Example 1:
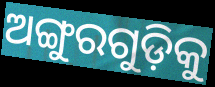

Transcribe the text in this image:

ଅଙ୍ଗୁରଗୁଡ଼ିକୁ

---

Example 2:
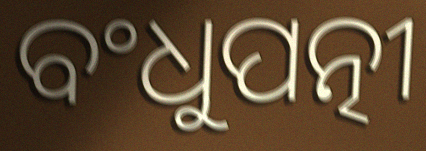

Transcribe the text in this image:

ବଂଧୁପତ୍ନୀ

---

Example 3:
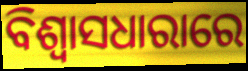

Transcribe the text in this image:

ବିଶ୍ଵାସଧାରାରେ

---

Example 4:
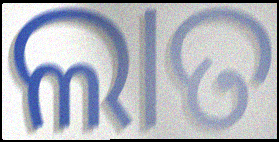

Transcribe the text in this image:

ଲାତ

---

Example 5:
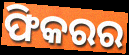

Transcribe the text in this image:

ଫିକରର